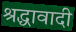
श्रद्धावादी